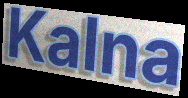
Kalna